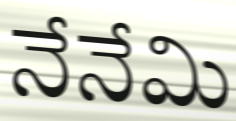
నేనేమి